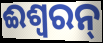
ଈଶ୍ୱରନ୍